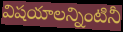
విషయాలన్నింటినీ